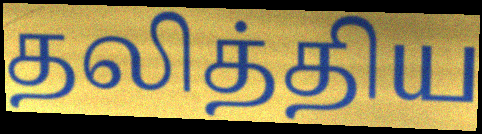
தலித்திய